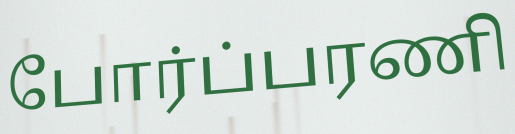
போர்ப்பரணி